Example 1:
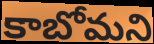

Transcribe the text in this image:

కాబోమని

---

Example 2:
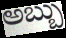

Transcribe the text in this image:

అబ్బు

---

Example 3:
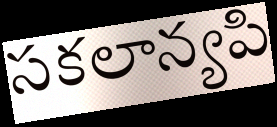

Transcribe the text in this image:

సకలాన్యపి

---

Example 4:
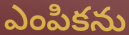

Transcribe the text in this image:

ఎంపికను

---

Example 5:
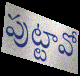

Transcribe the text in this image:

పుట్టావో